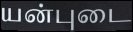
யன்புடை